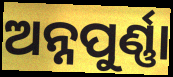
ଅନ୍ନପୁର୍ଣ୍ଣା